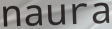
naura